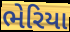
ભેરિયા